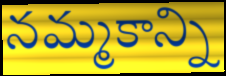
నమ్మకాన్ని